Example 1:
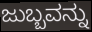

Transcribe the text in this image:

ಜುಬ್ಬವನ್ನು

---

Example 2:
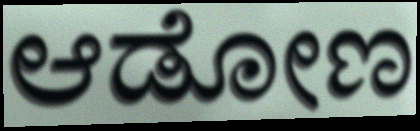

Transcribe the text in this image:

ಆಡೋಣ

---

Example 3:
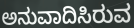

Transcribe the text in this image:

ಅನುವಾದಿಸಿರುವ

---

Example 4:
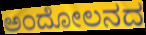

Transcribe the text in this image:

ಅಂದೋಲನದ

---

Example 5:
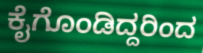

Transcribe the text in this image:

ಕೈಗೊಂಡಿದ್ದರಿಂದ